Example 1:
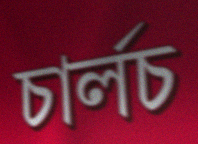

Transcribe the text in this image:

চাৰ্লচ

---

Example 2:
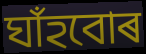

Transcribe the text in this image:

ঘাঁহবোৰ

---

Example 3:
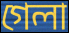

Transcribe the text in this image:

গেলা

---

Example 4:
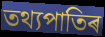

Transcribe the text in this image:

তথ্যপাতিৰ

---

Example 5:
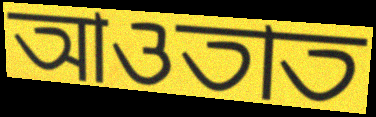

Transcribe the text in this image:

আওতাত